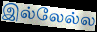
இல்லேல்ல